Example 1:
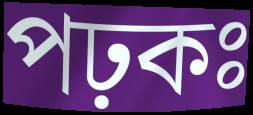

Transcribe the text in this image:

পঢ়কঃ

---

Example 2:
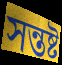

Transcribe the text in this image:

সন্তষ্ট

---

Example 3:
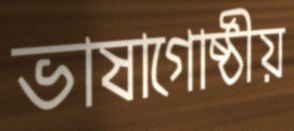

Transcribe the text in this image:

ভাষাগোষ্ঠীয়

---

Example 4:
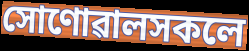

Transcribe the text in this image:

সোণোৱালসকলে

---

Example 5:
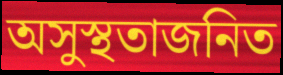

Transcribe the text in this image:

অসুস্থতাজনিত